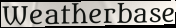
Weatherbase